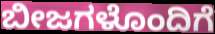
ಬೀಜಗಳೊಂದಿಗೆ